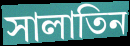
সালাতিন